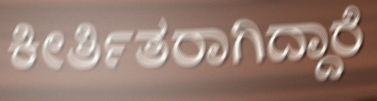
ಕೀರ್ತಿತರಾಗಿದ್ದಾರೆ